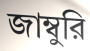
জাম্বুরি